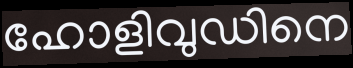
ഹോളിവുഡിനെ